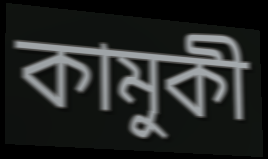
কামুকী